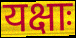
यक्षाः